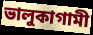
ভালুকাগামী